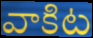
వాకిట